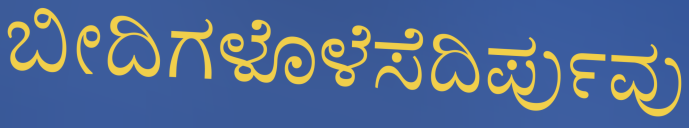
ಬೀದಿಗಳೊಳೆಸೆದಿರ್ಪುವು